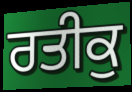
ਰਤੀਕੁ